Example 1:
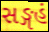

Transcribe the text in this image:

સઙ્ગહં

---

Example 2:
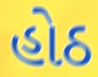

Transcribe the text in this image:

હોઠ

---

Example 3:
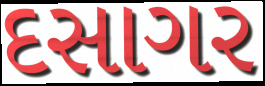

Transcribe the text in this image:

દસાગર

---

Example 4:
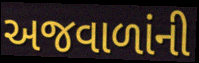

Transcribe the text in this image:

અજવાળાંની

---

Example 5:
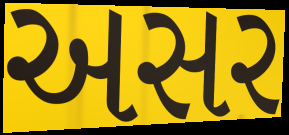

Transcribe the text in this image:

અસર